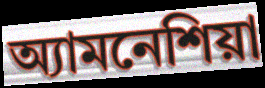
অ্যামনেশিয়া